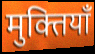
मुक्तियाँ